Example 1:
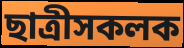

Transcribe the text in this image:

ছাত্ৰীসকলক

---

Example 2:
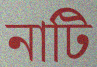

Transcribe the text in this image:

নাটি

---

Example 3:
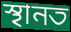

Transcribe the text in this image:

স্থানত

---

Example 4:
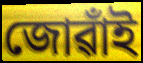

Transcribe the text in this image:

জোৱাঁই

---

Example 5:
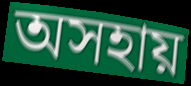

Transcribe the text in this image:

অসহায়